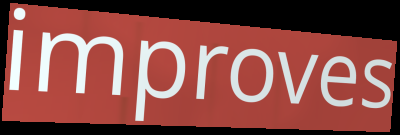
improves